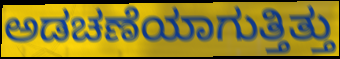
ಅಡಚಣೆಯಾಗುತ್ತಿತ್ತು